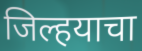
जिल्हयाचा